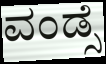
ವಂಡ್ಸೆ